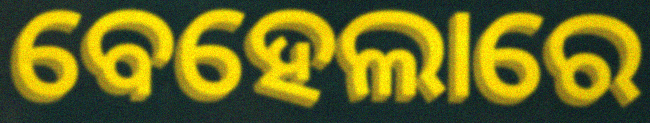
ବେହେଲାରେ